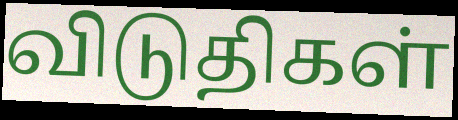
விடுதிகள்